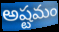
అష్టమం